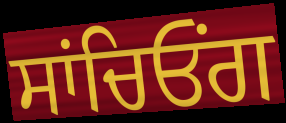
ਸਾਂਚਿਓਂਗ